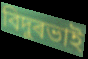
বিদুৰভাই